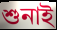
শুনাই